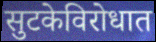
सुटकेविरोधात